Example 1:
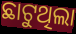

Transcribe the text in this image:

ଛାଟୁଥିଲା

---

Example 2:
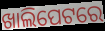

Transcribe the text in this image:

ଖାଲିପେଟରେ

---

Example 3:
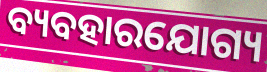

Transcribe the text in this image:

ବ୍ୟବହାରଯୋଗ୍ୟ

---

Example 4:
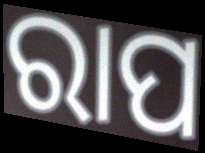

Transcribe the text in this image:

ରାପ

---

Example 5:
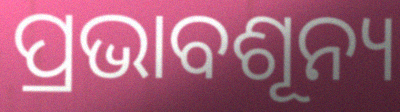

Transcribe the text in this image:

ପ୍ରଭାବଶୂନ୍ୟ